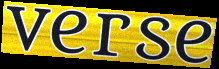
verse